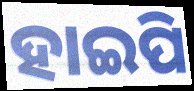
ହାଇପି